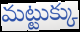
మట్టుక్కు